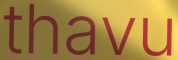
thavu